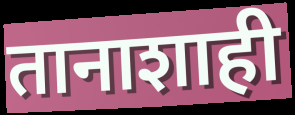
तानाशाही